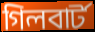
গিলবাৰ্ট